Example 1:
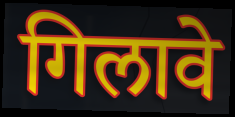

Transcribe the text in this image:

गिलावे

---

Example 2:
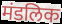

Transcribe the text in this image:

मंडलिक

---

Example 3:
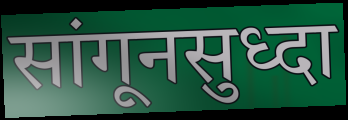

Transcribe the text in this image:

सांगूनसुध्दा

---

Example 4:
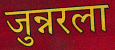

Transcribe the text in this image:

जुन्नरला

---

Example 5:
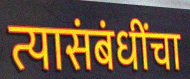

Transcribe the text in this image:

त्यासंबंधींचा